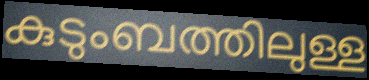
കുടുംബത്തിലുള്ള